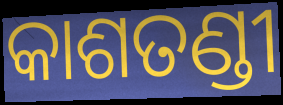
କାଶତଣ୍ଡୀ